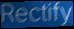
Rectify